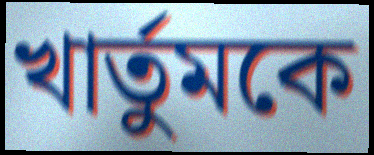
খার্তুমকে